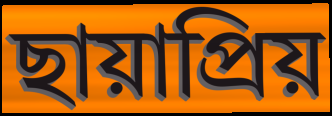
ছায়াপ্রিয়